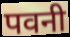
पवनी